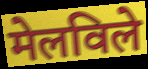
मेलविले